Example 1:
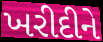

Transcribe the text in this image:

ખરીદીને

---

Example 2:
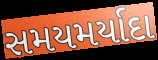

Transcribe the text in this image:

સમયમર્યાદા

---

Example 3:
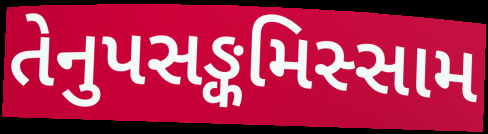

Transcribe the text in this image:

તેનુપસઙ્કમિસ્સામ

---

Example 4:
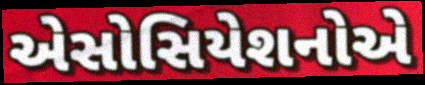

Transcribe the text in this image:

એસોસિયેશનોએ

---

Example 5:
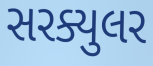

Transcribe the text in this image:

સરક્યુલર